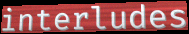
interludes